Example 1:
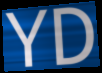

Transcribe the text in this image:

YD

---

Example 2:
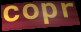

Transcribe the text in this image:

copr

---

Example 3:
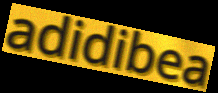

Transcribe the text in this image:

adidibea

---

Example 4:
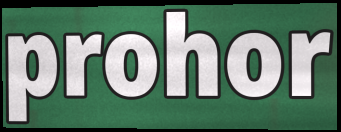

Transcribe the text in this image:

prohor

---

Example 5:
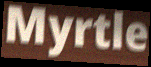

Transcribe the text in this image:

Myrtle